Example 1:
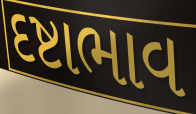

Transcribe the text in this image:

દષ્ટાભાવ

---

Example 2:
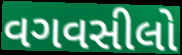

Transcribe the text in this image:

વગવસીલો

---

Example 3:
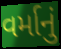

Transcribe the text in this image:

વર્માનું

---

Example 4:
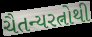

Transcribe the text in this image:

ચૈતન્યરત્નોથી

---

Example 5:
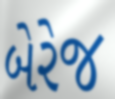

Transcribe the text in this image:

બેરેજ